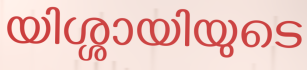
യിശ്ശായിയുടെ